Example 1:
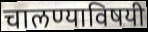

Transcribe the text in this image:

चालण्याविषयी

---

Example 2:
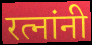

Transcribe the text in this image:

रत्नांनी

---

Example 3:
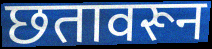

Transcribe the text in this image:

छतावरून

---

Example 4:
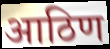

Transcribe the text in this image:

आठिण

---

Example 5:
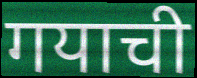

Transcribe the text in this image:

गयाची